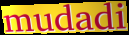
mudadi